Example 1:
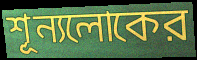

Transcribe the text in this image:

শূন্যলোকের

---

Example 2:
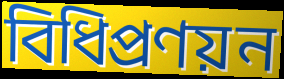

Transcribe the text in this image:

বিধিপ্রণয়ন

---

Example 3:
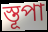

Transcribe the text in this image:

স্তূপা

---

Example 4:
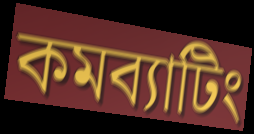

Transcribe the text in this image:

কমব্যাটিং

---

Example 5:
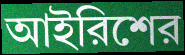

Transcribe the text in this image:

আইরিশের